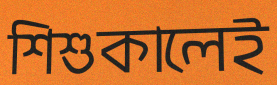
শিশুকালেই